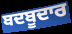
ਬਦਬੂਦਾਰ